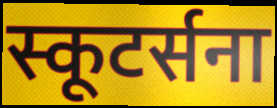
स्कूटर्सना